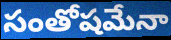
సంతోషమేనా